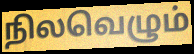
நிலவெழும்